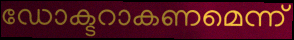
ഡോക്ടറാകണമെന്ന്